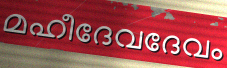
മഹീദേവദേവം